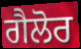
ਗੈਲੋਰ